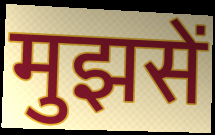
मुझसें